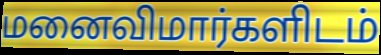
மனைவிமார்களிடம்